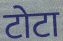
टोटा